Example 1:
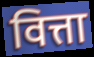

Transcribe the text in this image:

वित्ता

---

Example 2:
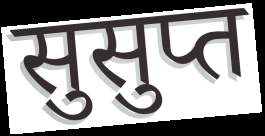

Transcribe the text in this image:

सुसुप्त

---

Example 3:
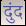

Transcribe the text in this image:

दुंद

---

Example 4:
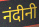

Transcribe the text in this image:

नंदीनी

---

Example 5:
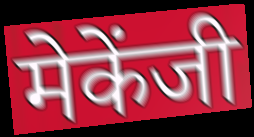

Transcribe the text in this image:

मेकेंजी